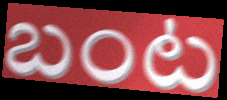
బంట